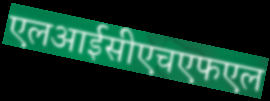
एलआईसीएचएफएल